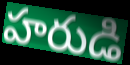
హరుడి